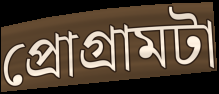
প্রোগ্রামটা